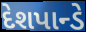
દેશપાન્ડે